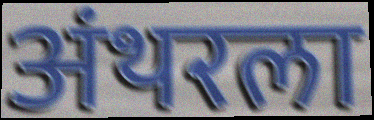
अंथरला